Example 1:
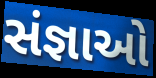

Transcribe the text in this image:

સંજ્ઞાઓ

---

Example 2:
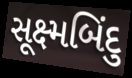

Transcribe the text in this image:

સૂક્ષ્મબિંદુ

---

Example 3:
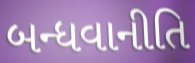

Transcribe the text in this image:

બન્ધવાનીતિ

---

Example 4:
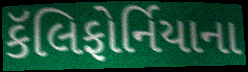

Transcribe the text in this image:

કૅલિફોર્નિયાના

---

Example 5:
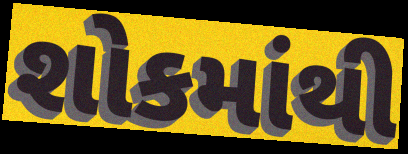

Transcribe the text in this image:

શોકમાંથી